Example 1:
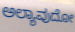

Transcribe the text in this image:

ಅಲ್ಯಾವುದೋ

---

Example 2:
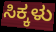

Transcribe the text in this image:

ಸಿಕ್ಕಳು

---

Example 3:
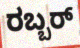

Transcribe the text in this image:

ರಬ್ಬರ್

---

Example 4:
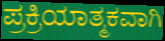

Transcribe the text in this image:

ಪ್ರಕ್ರಿಯಾತ್ಮಕವಾಗಿ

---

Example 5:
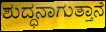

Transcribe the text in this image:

ಶುದ್ಧನಾಗುತ್ತಾನೆ